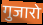
गुजारो